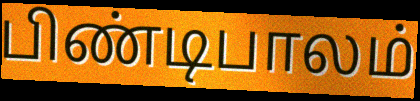
பிண்டிபாலம்